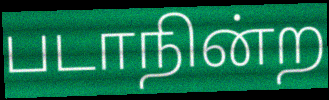
படாநின்ற